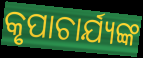
କୃପାଚାର୍ଯ୍ୟଙ୍କ